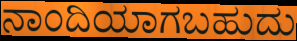
ನಾಂದಿಯಾಗಬಹುದು